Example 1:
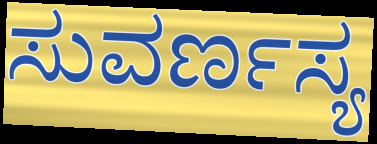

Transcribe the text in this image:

ಸುವರ್ಣಸ್ಯ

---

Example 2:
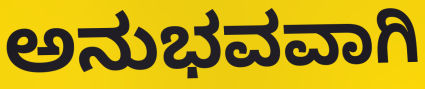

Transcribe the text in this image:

ಅನುಭವವಾಗಿ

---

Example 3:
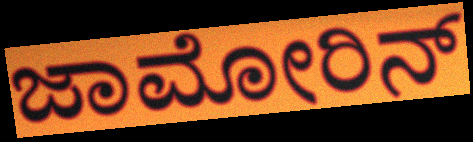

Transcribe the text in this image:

ಜಾಮೋರಿನ್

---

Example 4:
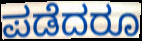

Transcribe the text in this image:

ಪಡೆದರೂ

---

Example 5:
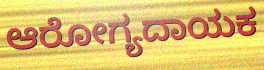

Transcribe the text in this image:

ಆರೋಗ್ಯದಾಯಕ